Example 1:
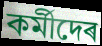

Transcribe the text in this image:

কৰ্মীদেৰ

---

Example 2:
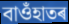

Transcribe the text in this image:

বাওঁহাতৰ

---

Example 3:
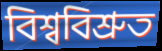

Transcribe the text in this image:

বিশ্ববিশ্ৰুত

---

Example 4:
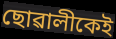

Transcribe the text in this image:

ছোৱালীকেই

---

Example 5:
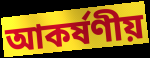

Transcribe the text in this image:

আকৰ্ষণীয়